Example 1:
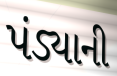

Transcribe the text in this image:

પંડ્યાની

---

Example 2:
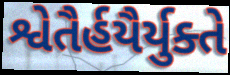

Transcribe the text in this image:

શ્વેતૈર્હયૈર્યુક્તે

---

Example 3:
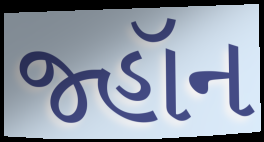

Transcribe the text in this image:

જ્હૉન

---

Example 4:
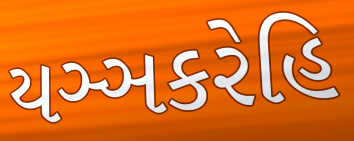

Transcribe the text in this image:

યઞ્ઞકરેહિ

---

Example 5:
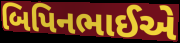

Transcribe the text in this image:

બિપિનભાઈએ